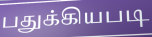
பதுக்கியபடி